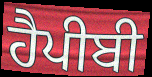
ਹੈਪੀਬੀ